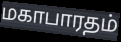
மகாபாரதம்